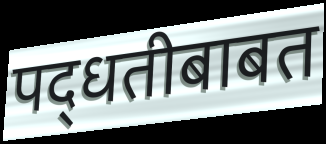
पद्धतीबाबत